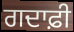
ਗਦਾਫ਼ੀ